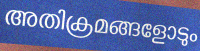
അതിക്രമങ്ങളോടും